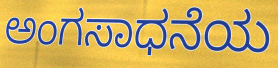
ಅಂಗಸಾಧನೆಯ